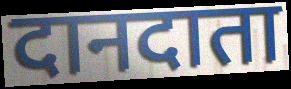
दानदाता